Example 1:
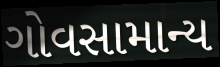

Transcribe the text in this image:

ગોવસામાન્ય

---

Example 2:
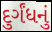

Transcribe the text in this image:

દુર્ગંધનું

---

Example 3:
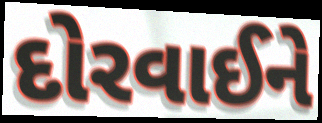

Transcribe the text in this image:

દોરવાઈને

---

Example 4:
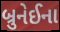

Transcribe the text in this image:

બ્રુનેઈના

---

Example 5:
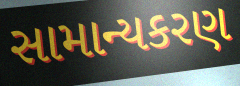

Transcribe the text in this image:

સામાન્યકરણ